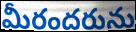
మీరందరును